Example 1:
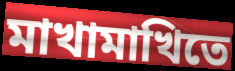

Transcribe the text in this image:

মাখামাখিতে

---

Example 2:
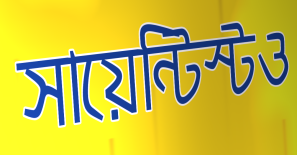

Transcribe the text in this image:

সায়েন্টিস্টও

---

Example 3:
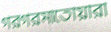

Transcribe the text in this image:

গরগরমাতোয়ারা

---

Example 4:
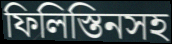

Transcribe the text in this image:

ফিলিস্তিনসহ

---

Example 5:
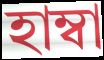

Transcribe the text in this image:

হাম্বা